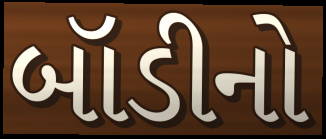
બૉડીનો